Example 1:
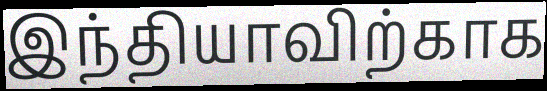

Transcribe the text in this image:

இந்தியாவிற்காக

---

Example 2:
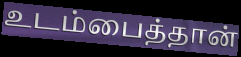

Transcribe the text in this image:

உடம்பைத்தான்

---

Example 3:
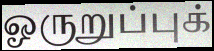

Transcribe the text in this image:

ஓருறுப்புக்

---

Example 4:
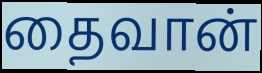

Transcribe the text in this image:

தைவான்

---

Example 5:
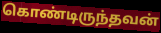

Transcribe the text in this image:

கொண்டிருந்தவன்